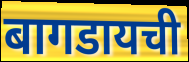
बागडायची